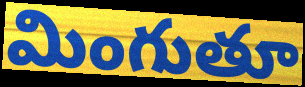
మింగుతూ